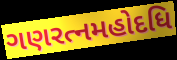
ગણરત્નમહોદધિ